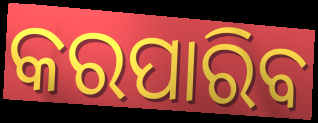
କରପାରିବ